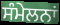
ਸੰਮੇਲਨਾਂ